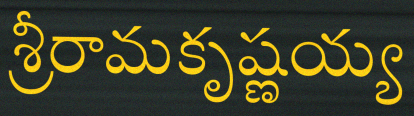
శ్రీరామకృష్ణయ్య